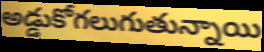
అడ్డుకోగలుగుతున్నాయి